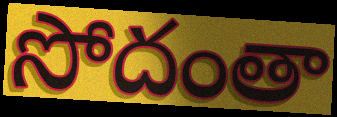
సోదంతా